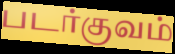
படர்குவம்